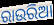
ରାଉରିଆ